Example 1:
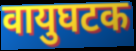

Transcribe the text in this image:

वायुघटक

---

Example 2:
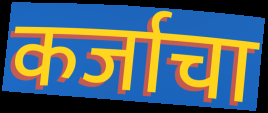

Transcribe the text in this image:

कर्जाचा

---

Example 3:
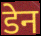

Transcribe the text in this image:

डेन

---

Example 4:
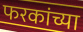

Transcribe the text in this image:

फरकांच्या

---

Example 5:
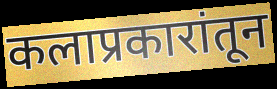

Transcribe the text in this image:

कलाप्रकारांतून